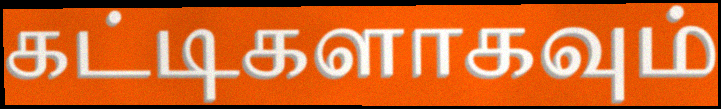
கட்டிகளாகவும்